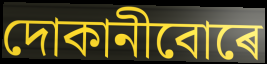
দোকানীবোৰে